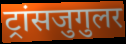
ट्रांसजुगुलर